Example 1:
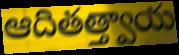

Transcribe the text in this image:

ఆదితత్త్వాయ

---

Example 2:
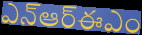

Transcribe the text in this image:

ఎన్ఆర్ఈఎం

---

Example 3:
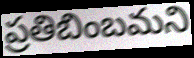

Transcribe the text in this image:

ప్రతిబింబమని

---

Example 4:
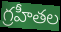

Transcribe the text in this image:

గ్రహీతల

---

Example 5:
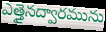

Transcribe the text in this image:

ఎత్తైనద్వారమును